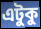
এটুকু